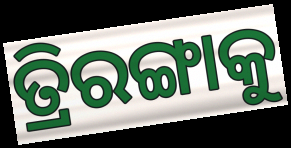
ତ୍ରିରଙ୍ଗାକୁ